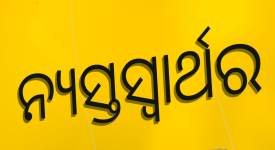
ନ୍ୟସ୍ତସ୍ୱାର୍ଥର